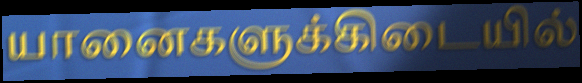
யானைகளுக்கிடையில்